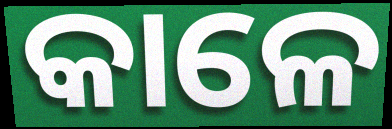
କାଳେ